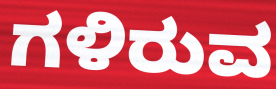
ಗಳಿರುವ